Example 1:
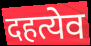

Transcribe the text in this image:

दहत्येव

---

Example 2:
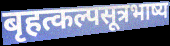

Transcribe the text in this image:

बृहत्कल्पसूत्रभाष्य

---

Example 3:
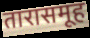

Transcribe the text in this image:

तारासमूह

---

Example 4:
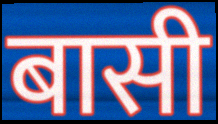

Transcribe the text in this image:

बासी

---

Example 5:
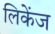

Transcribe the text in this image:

लिकेंज